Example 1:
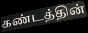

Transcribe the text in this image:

கண்டத்தின்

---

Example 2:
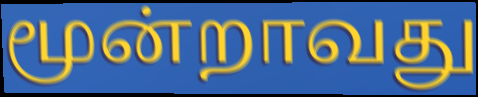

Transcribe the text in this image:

மூன்றாவது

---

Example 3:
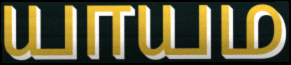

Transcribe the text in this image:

யாயம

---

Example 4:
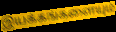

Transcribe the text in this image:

இயக்கங்களையும்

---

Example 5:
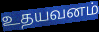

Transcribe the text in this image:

உதயவனம்